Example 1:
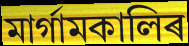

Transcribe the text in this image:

মাৰ্গামকালিৰ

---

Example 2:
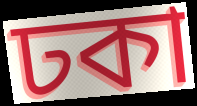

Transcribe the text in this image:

ঢকা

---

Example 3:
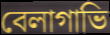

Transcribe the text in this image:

বেলাগাভি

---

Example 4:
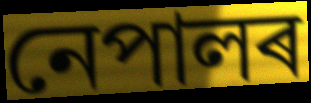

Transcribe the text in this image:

নেপালৰ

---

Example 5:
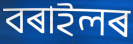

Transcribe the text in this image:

বৰাইলৰ